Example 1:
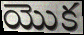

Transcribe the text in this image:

యొక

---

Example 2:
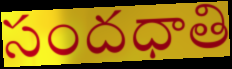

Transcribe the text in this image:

సందధాతి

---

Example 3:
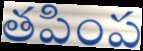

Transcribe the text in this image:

తపింప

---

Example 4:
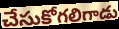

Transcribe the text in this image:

చేసుకోగలిగాడు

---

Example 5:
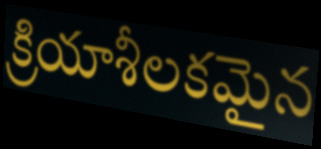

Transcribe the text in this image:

క్రియాశీలకమైన